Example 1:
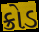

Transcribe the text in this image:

ક્રોડ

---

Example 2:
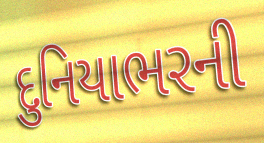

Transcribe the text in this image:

દુનિયાભરની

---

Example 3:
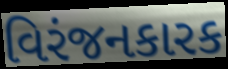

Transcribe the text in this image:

વિરંજનકારક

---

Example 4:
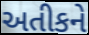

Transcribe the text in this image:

અતીકને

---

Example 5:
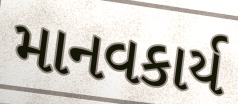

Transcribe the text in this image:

માનવકાર્ય